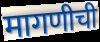
मागणीची